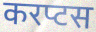
करप्टस